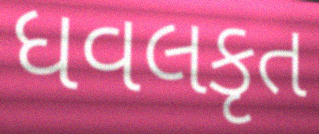
ધવલકૃત